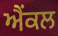
ਐਂਕਲ